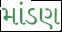
માંડણ